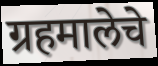
ग्रहमालेचे